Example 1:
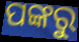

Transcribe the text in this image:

ପଙ୍କରୁ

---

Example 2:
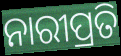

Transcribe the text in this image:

ନାରୀପ୍ରତି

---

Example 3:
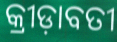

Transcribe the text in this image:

କ୍ରୀଡ଼ାବତୀ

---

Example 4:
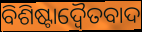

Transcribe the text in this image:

ବିଶିଷ୍ଟାଦ୍ୱୈତବାଦ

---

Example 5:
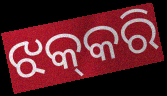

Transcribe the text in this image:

ଝକ୍‌କରି